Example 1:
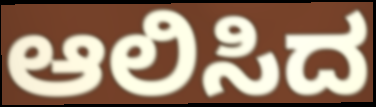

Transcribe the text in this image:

ಆಲಿಸಿದ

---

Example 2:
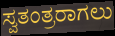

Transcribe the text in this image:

ಸ್ವತಂತ್ರರಾಗಲು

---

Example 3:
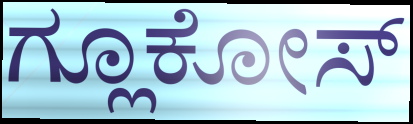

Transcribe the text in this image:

ಗ್ಲೂಕೋಸ್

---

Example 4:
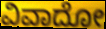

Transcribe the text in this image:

ವಿವಾದೋ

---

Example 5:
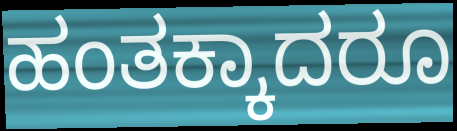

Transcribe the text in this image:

ಹಂತಕ್ಕಾದರೂ